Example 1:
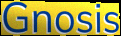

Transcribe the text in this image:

Gnosis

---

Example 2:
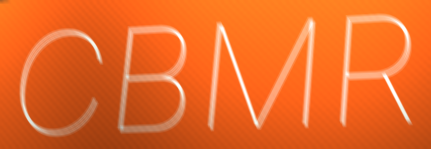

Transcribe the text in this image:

CBMR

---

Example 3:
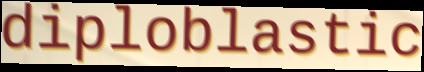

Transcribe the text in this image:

diploblastic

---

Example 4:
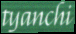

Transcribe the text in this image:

tyanchi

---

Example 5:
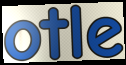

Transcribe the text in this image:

otle